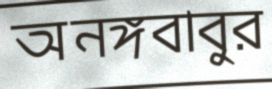
অনঙ্গবাবুর